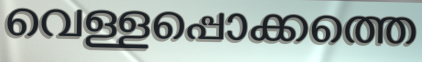
വെള്ളപ്പൊക്കത്തെ